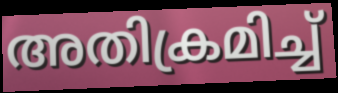
അതിക്രമിച്ച്